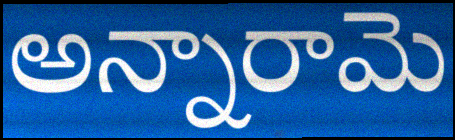
అన్నారామె